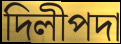
দিলীপদা